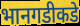
भानगडीकडे